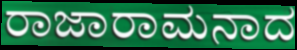
ರಾಜಾರಾಮನಾದ